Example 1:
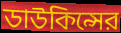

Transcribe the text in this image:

ডাউকিন্সের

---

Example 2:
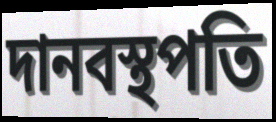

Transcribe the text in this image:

দানবস্থপতি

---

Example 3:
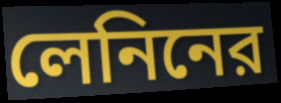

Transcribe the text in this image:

লেনিনের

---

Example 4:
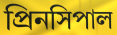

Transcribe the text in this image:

প্রিনসিপাল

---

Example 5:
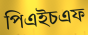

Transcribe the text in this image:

পিএইচএফ